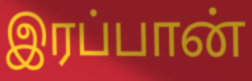
இரப்பான்